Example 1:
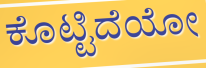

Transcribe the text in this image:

ಕೊಟ್ಟಿದೆಯೋ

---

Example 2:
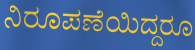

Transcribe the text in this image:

ನಿರೂಪಣೆಯಿದ್ದರೂ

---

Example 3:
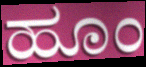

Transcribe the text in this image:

ಹೂಂ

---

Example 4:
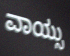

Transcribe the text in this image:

ವಾಯ್ಸು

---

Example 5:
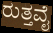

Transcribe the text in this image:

ರುತ್ತವೈ